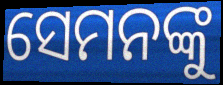
ସେମନଙ୍କୁ